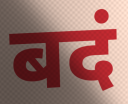
बदं